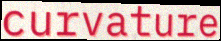
curvature